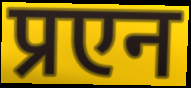
प्रएन